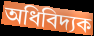
অধিবিদ্যক